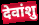
देवांशु